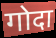
गोदा